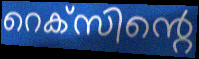
റെക്‌സിന്റെ